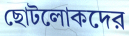
ছোটলোকদের